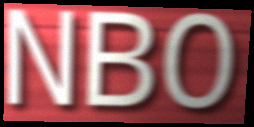
NBO